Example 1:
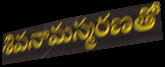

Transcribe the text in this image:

శివనామస్మరణతో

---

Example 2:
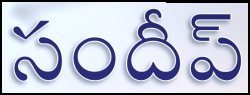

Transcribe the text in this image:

సందీప్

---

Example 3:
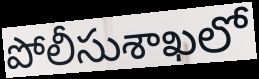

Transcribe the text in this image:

పోలీసుశాఖలో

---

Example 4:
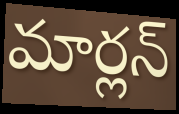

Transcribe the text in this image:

మార్లన్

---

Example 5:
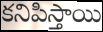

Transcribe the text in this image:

కనిపిస్తాయి